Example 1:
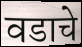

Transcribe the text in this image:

वडाचे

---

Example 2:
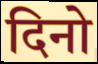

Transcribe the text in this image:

दिनो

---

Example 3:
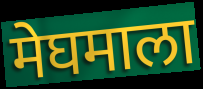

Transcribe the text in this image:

मेघमाला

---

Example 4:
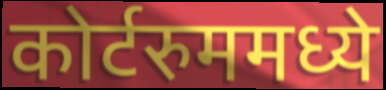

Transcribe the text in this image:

कोर्टरुममध्ये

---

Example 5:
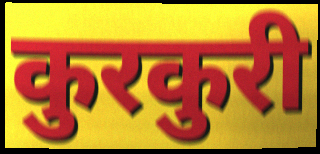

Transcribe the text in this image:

कुरकुरी